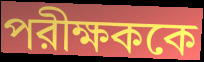
পরীক্ষককে